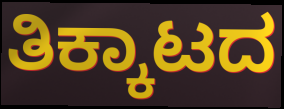
ತಿಕ್ಕಾಟದ